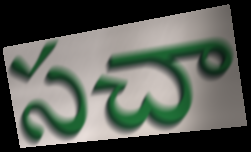
సచా